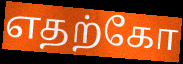
எதற்கோ